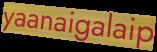
yaanaigalaip